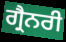
ਗ੍ਰੈਨਰੀ